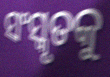
ସଂସ୍କୃତକୁ